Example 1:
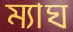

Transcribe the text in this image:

ম্যাঘ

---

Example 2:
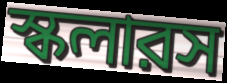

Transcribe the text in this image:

স্কলারস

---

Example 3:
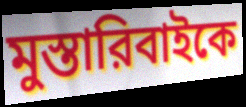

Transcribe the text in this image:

মুস্তারিবাইকে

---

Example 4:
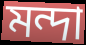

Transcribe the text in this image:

মন্দা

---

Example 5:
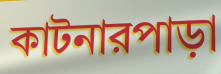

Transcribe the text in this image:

কাটনারপাড়া